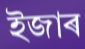
ইজাৰ